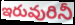
ఇరువురినీ